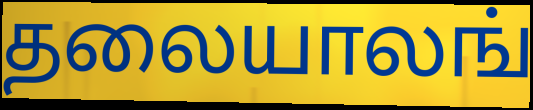
தலையாலங்